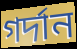
গর্দান